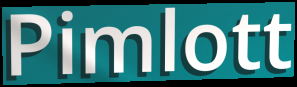
Pimlott